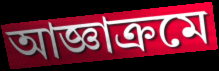
আজ্ঞাক্রমে